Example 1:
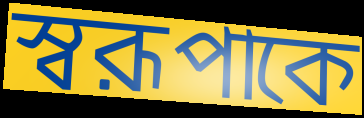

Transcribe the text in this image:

স্বরূপাকে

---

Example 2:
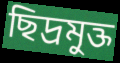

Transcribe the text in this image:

ছিদ্রমুক্ত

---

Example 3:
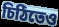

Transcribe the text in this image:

চিঠিতেও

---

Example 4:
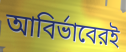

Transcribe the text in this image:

আবির্ভাবেরই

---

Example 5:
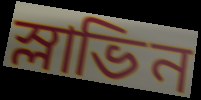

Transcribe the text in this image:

স্লাভিন